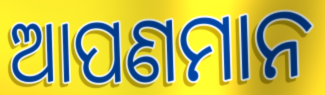
ଆପଣମାନ